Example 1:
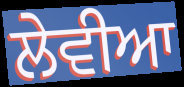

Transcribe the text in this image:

ਲੇਵੀਆ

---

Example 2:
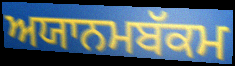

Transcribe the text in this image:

ਅਯਾਨਮਬੱਕਮ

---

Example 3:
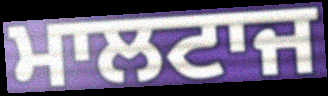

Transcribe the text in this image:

ਮਾਲਟਾਜ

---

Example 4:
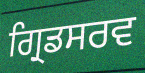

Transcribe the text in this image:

ਗ੍ਰਿਡਸਰਵ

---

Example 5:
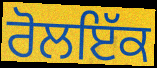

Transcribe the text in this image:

ਰੋਲਇੱਕ